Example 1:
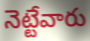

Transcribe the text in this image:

నెట్టేవారు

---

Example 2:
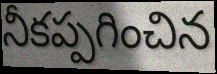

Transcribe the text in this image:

నీకప్పగించిన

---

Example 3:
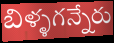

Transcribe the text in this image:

బిళ్ళగన్నేరు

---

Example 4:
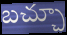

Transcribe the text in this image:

బచ్చూ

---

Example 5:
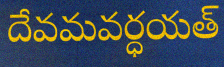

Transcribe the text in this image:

దేవమవర్ధయత్